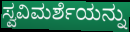
ಸ್ವವಿಮರ್ಶೆಯನ್ನು